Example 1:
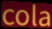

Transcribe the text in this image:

cola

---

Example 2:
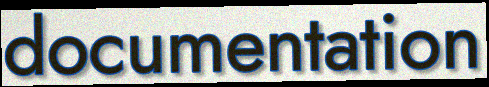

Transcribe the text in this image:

documentation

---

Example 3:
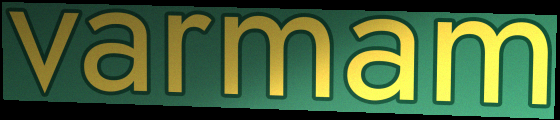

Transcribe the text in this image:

varmam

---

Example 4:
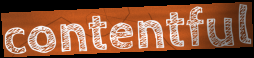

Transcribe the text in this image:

contentful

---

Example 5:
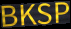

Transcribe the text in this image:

BKSP